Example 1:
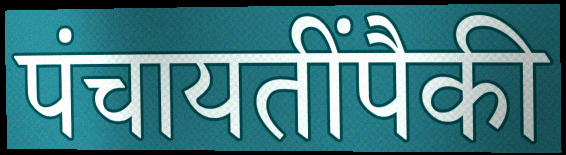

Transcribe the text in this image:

पंचायतींपैकी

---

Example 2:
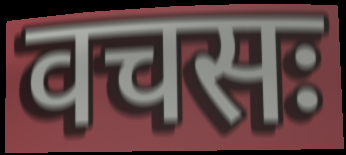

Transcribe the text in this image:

वचसः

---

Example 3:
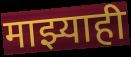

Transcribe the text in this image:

माझ्याही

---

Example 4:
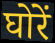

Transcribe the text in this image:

घोरें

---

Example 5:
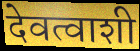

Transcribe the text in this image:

देवत्वाशी